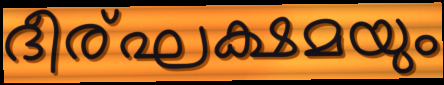
ദീര്ഘക്ഷമയും